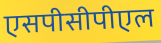
एसपीसीपीएल